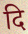
दि